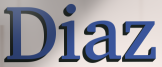
Diaz